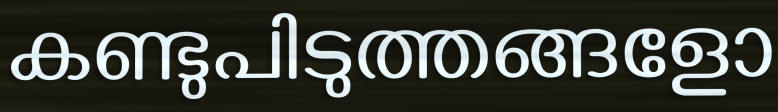
കണ്ടുപിടുത്തങ്ങളോ